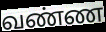
வண்ண